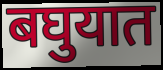
बघुयात